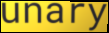
unary